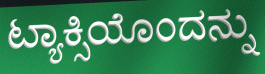
ಟ್ಯಾಕ್ಸಿಯೊಂದನ್ನು